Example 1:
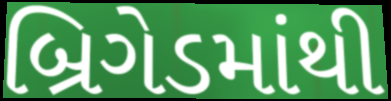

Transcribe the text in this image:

બ્રિગેડમાંથી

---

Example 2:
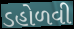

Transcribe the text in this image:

ડહોળવી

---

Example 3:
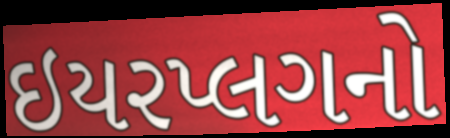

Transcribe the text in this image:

ઇયરપ્લગનો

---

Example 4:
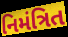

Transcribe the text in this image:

નિમંત્રિત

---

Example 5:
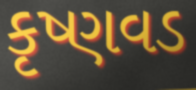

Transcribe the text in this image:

કૃષ્ણવડ